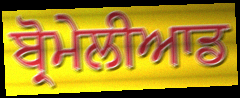
ਬ੍ਰੋਮੇਲੀਆਡ